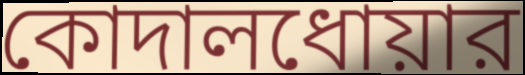
কোদালধোয়ার